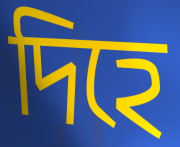
দিহে